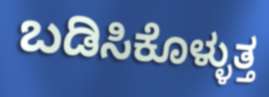
ಬಡಿಸಿಕೊಳ್ಳುತ್ತ